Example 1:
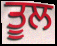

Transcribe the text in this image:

ਤੂਲ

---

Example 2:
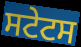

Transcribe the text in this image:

ਸਟੇਟਸ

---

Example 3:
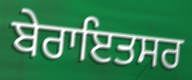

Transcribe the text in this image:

ਬੇਰਾਇਤਸਰ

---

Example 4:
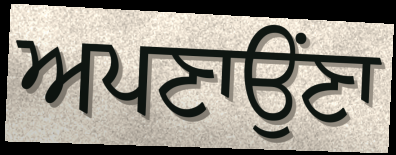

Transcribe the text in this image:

ਅਪਣਾਉਂਣਾ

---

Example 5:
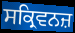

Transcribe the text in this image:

ਸਕ੍ਰਿਵਨਜ਼